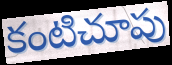
కంటిచూపు